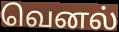
வெனல்